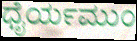
ಧೈರ್ಯಮುಂ